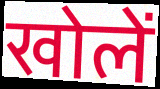
खोलें